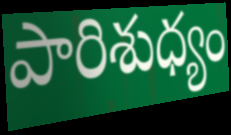
పారిశుధ్యం